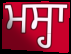
ਮਸ੍ਹਾ